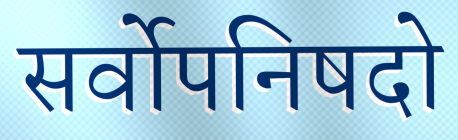
सर्वोपनिषदो